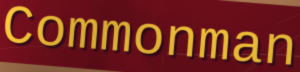
Commonman